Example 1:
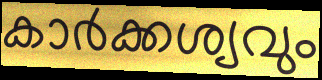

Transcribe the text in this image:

കാർക്കശ്യവും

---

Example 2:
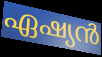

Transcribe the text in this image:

ഏഷ്യൻ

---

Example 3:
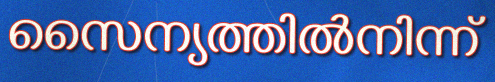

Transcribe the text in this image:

സൈന്യത്തിൽനിന്ന്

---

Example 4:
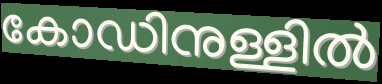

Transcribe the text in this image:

കോഡിനുള്ളിൽ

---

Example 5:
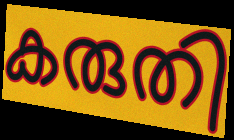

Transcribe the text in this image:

കരുതി